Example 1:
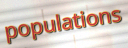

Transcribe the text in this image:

populations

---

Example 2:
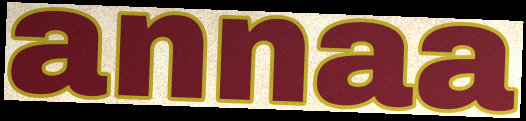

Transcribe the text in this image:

annaa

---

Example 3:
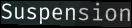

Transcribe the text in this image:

Suspension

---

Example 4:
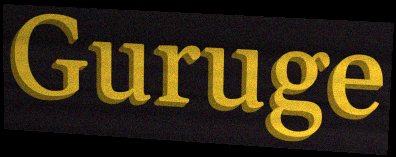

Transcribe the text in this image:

Guruge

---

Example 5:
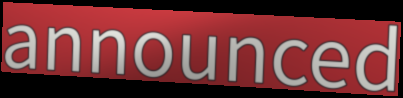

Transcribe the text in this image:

announced